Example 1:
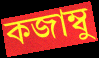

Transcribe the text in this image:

কজাম্বু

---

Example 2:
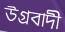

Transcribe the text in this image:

উগ্ৰবাদী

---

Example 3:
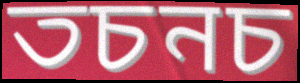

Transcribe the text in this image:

তচনচ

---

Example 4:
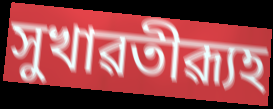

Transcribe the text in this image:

সুখাৱতীৱ্যূহ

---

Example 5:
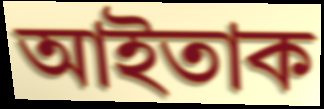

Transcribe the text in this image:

আইতাক